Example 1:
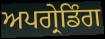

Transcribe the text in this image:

ਅਪਗ੍ਰੇਡਿੰਗ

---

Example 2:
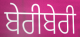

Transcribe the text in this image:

ਬੇਰੀਬੇਰੀ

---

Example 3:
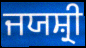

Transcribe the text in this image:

ਜਯਸ਼੍ਰੀ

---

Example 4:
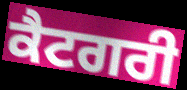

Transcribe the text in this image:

ਕੈਟਗਰੀ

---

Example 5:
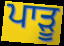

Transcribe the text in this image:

ਪਾੜੂ